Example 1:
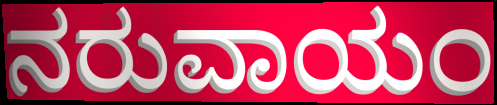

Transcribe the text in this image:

ನರುವಾಯಂ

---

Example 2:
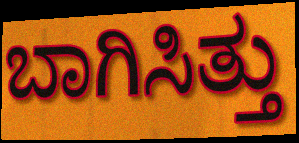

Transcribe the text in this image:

ಬಾಗಿಸಿತ್ತು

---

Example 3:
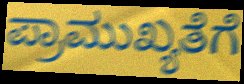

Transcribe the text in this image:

ಪ್ರಾಮುಖ್ಯತೆಗೆ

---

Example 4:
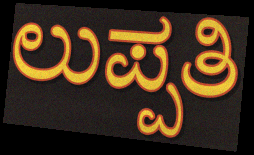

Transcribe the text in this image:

ಲುಪ್ಪತಿ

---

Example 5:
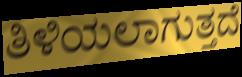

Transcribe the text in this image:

ತಿಳಿಯಲಾಗುತ್ತದೆ